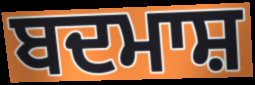
ਬਦਮਾਸ਼